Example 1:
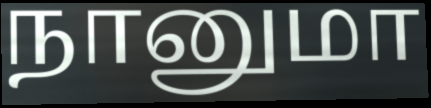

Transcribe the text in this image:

நானுமா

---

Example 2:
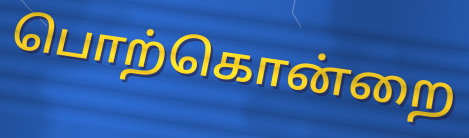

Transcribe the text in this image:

பொற்கொன்றை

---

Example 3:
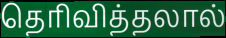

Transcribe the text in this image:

தெரிவித்தலால்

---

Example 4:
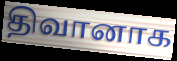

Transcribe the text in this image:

திவானாக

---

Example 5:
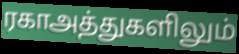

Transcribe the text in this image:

ரகாஅத்துகளிலும்